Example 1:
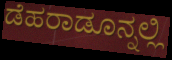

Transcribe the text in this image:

ಡೆಹರಾಡೂನ್ನಲ್ಲಿ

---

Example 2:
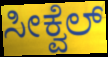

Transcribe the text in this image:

ಸೀಕ್ವೆಲ್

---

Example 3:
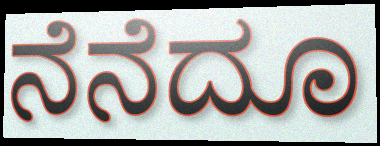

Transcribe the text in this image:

ನೆನೆದೂ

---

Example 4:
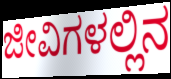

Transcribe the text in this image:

ಜೀವಿಗಳಲ್ಲಿನ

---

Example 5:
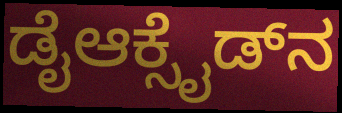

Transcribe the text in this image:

ಡೈಆಕ್ಸೈಡ್‌ನ